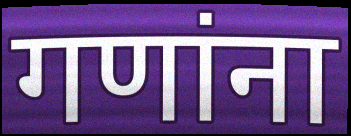
गणांना